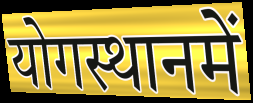
योगस्थानमें